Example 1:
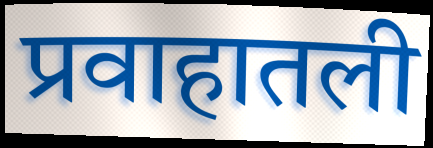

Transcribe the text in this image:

प्रवाहातली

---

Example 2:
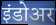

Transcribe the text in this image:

इंडोअर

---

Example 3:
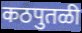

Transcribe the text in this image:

कठपुतळी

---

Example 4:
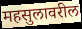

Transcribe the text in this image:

महसुलावरील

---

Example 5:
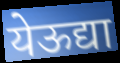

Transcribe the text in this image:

येऊद्या